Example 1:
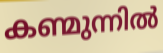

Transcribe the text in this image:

കണ്മുന്നിൽ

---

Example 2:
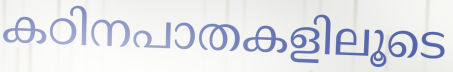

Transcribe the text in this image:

കഠിനപാതകളിലൂടെ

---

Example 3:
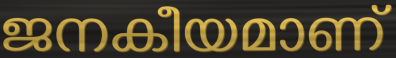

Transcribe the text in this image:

ജനകീയമാണ്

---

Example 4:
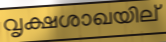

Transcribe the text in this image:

വൃക്ഷശാഖയില്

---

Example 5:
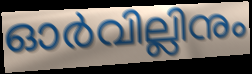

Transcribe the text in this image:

ഓർവില്ലിനും